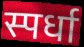
स्पर्धा